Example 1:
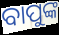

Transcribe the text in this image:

ବାପୁଙ୍କ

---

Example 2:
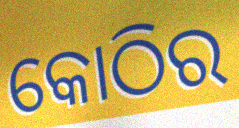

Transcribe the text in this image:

କୋଠିର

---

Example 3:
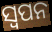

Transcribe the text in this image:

ସ୍ବପନ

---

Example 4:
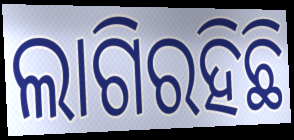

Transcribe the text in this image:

ଲାଗିରହିଛି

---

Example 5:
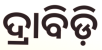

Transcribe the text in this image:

ଦ୍ରାବିଡ଼ି